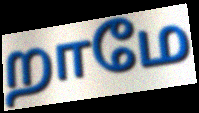
றாமே